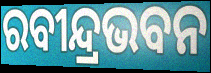
ରବୀନ୍ଦ୍ରଭବନ